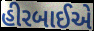
હીરબાઈએ